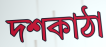
দশকাঠা